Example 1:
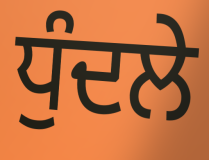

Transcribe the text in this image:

ਧੁੰਦਲੇ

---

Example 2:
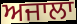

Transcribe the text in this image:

ਅਜਾਲਾ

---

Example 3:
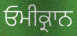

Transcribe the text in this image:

ਓਮੀਕ੍ਰਾਨ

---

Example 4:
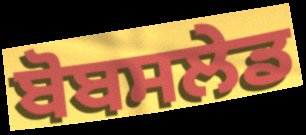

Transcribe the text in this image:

ਬੋਬਸਲੇਡ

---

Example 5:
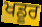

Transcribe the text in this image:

ਖਡੂਰ